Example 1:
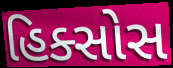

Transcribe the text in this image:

હિક્સોસ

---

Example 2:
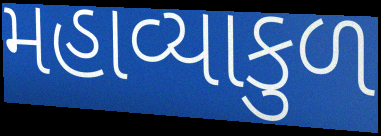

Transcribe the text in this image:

મહાવ્યાકુળ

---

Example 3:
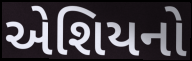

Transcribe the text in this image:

એશિયનો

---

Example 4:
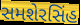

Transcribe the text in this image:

સમશેરસિંહ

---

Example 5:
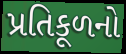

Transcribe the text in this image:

પ્રતિકૂળનો